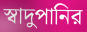
স্বাদুপানির